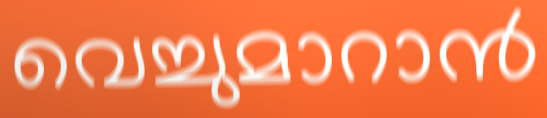
വെച്ചുമാറാൻ